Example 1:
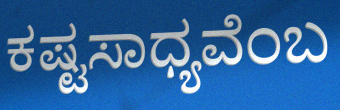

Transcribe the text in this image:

ಕಷ್ಟಸಾಧ್ಯವೆಂಬ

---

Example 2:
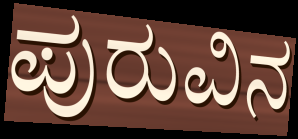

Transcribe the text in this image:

ಪುರುವಿನ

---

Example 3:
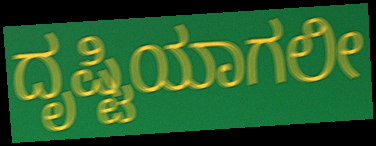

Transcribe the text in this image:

ದೃಷ್ಟಿಯಾಗಲೀ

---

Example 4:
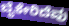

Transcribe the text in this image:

ಬೈಕೇರಿದೆವು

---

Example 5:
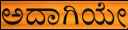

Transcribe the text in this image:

ಅದಾಗಿಯೇ